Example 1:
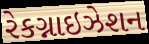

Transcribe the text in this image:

રેકગ્નાઇઝેશન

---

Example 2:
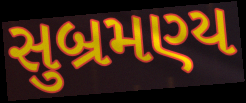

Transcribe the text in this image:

સુબ્રમણ્ય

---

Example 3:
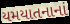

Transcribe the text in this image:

યમયાતનાનાં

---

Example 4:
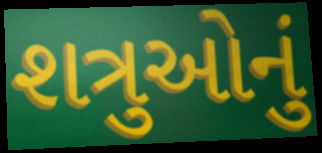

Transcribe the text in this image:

શત્રુઓનું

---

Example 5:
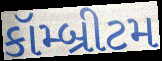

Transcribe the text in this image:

કૉમ્બ્રીટમ